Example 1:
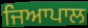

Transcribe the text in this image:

ਜਿਆਪਾਲ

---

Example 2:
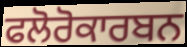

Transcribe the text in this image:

ਫਲੋਰੋਕਾਰਬਨ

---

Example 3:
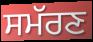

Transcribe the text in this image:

ਸਮੱਰਣ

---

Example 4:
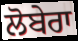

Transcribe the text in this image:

ਲੋਬੇਰਾ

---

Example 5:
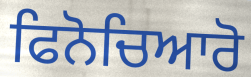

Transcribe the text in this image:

ਫਿਨੋਚਿਆਰੋ